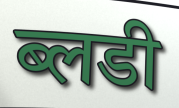
ब्लडी